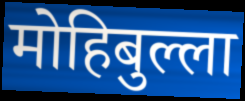
मोहिबुल्ला